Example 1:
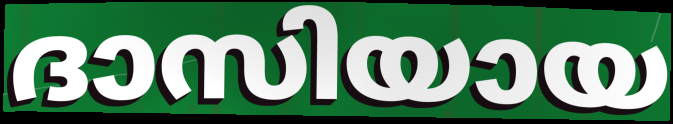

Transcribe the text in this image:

ദാസിയായ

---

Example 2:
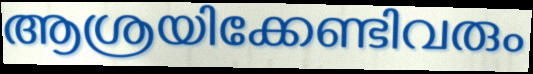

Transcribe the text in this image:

ആശ്രയിക്കേണ്ടിവരും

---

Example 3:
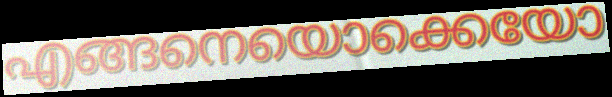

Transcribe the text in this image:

എങ്ങനെയൊക്കെയോ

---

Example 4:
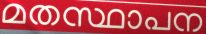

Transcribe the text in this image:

മതസ്ഥാപന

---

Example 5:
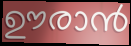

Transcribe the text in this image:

ഊരാൻ